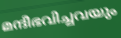
മന്ദീഭവിച്ചവയും